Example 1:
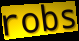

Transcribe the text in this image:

robs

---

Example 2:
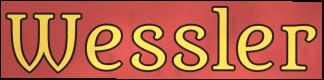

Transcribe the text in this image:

Wessler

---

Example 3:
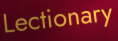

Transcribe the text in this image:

Lectionary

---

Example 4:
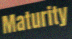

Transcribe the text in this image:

Maturity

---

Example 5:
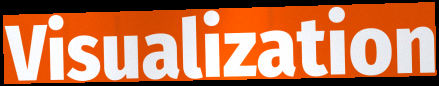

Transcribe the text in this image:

Visualization